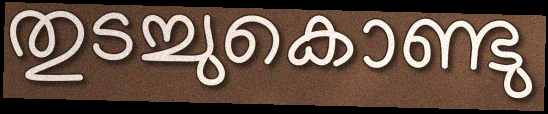
തുടച്ചുകൊണ്ടു